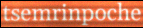
tsemrinpoche